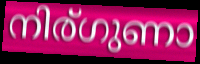
നിര്ഗുണാ